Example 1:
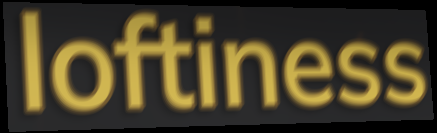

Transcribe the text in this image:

loftiness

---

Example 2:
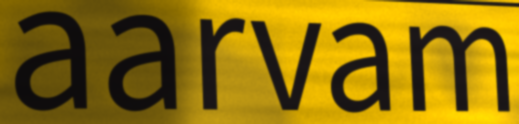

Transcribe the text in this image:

aarvam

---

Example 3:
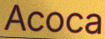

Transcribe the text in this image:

Acoca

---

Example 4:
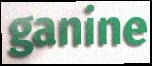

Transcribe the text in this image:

ganine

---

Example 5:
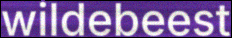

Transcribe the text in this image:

wildebeest